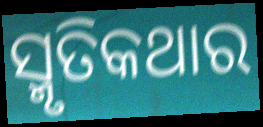
ସ୍ମୃତିକଥାର